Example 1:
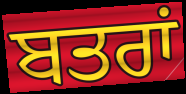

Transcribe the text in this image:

ਬਤਰਾਂ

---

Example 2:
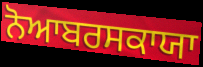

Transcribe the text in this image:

ਨੋਆਬਰਸਕਾਯਾ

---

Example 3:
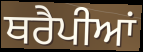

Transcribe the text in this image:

ਥਰੈਪੀਆਂ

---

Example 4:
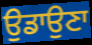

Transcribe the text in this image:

ਉਡਾਉਣਾ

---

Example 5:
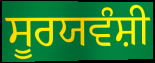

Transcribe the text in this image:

ਸੂਰਯਵੰਸ਼ੀ